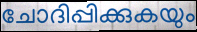
ചോദിപ്പിക്കുകയും